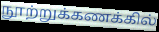
நூற்றுக்கணக்கில்